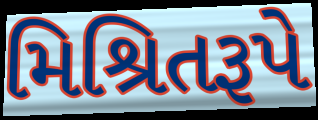
મિશ્રિતરૂપે